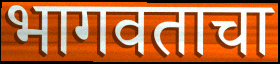
भागवताचा